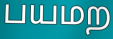
பயமற